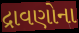
દ્રાવણોના